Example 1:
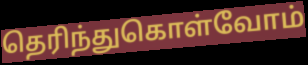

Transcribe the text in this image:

தெரிந்துகொள்வோம்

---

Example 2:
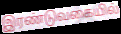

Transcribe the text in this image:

இரண்டுவகையில்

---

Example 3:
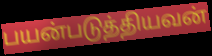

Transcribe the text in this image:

பயன்படுத்தியவன்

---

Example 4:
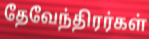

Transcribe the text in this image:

தேவேந்திரர்கள்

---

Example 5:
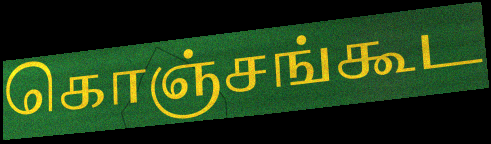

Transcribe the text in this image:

கொஞ்சங்கூட